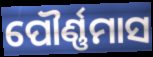
ପୌର୍ଣ୍ଣମାସ